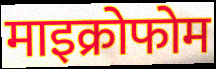
माइक्रोफोम